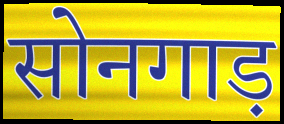
सोनगाड़